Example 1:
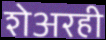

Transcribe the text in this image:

शेअरही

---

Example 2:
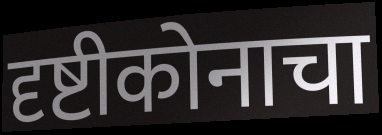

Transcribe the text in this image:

दृष्टीकोनाचा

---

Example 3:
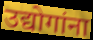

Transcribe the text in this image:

उद्योगांना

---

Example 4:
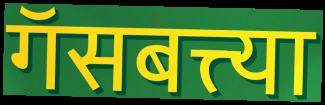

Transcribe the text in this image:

गॅसबत्त्या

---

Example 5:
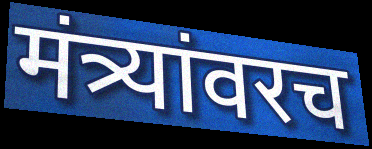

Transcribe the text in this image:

मंत्र्यांवरच